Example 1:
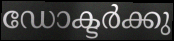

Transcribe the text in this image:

ഡോക്ടർക്കു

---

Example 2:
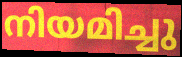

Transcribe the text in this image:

നിയമിച്ചു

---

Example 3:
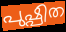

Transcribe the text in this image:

പുഷ്പിത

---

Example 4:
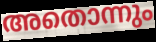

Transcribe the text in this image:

അതൊന്നും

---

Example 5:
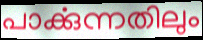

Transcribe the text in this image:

പാൎക്കുന്നതിലും